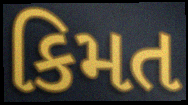
કિમત